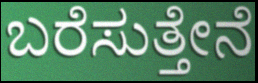
ಬರೆಸುತ್ತೇನೆ